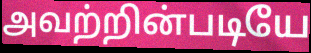
அவற்றின்படியே